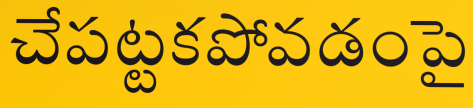
చేపట్టకపోవడంపై